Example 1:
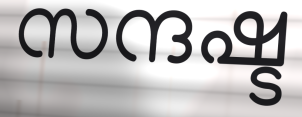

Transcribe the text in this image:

സന്ദഷ്ട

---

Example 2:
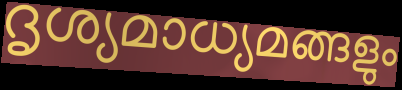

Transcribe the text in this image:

ദൃശ്യമാധ്യമങ്ങളും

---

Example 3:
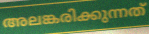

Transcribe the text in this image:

അലങ്കരിക്കുന്നത്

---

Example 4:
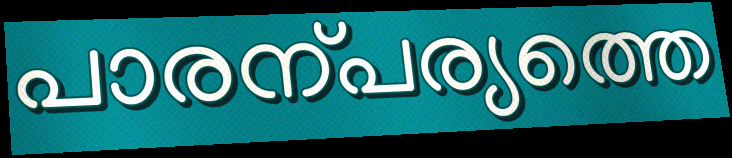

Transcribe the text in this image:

പാരന്പര്യത്തെ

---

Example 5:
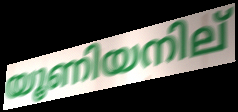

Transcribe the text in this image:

യൂണിയനില്